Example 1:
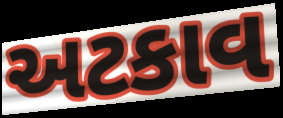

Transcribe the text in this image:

અટકાવ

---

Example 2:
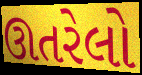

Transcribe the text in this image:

ઊતરેલો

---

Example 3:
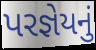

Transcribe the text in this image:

પરજ્ઞેયનું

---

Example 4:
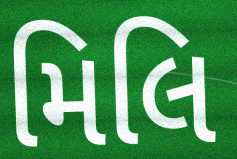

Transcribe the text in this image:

મિલિ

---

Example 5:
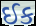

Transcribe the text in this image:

ઈક